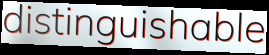
distinguishable